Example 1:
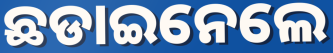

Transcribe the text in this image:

ଛଡାଇନେଲେ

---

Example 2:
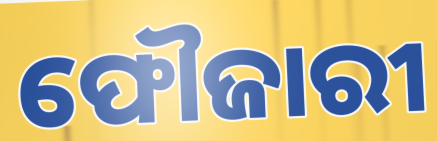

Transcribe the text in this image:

ଫୌଜାରୀ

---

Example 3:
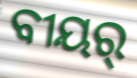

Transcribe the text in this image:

ବୀୟର୍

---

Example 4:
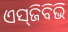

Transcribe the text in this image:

ଏସ୍‌ଜିବିଭି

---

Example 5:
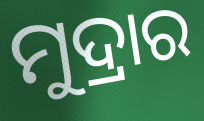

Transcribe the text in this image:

ମୁଦ୍ରାର